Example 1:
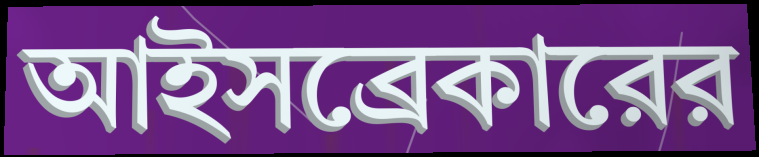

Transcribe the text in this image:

আইসব্রেকারের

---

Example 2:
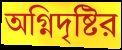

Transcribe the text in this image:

অগ্নিদৃষ্টির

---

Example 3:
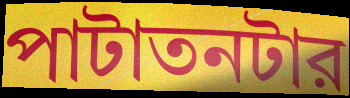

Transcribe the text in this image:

পাটাতনটার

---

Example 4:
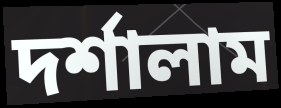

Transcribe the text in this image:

দর্শালাম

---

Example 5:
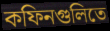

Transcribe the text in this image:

কফিনগুলিতে